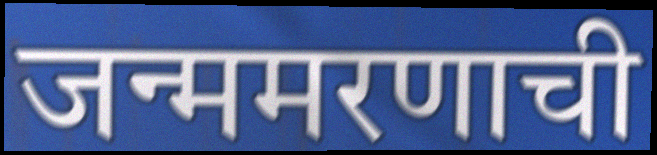
जन्ममरणाची